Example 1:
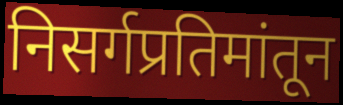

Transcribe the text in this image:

निसर्गप्रतिमांतून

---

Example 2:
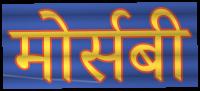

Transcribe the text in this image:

मोर्सबी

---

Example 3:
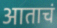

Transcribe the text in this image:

आताचं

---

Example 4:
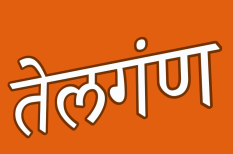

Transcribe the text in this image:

तेलगंण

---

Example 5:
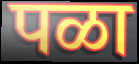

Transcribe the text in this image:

पळा